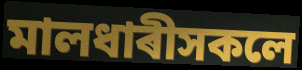
মালধাৰীসকলে